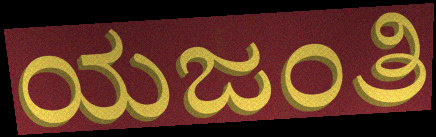
ಯಜಂತಿ